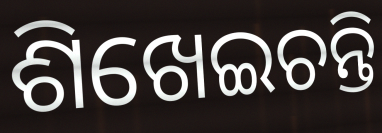
ଶିଖେଇଚନ୍ତି